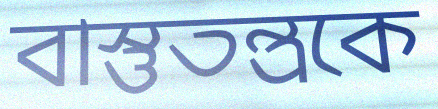
বাস্তুতন্ত্রকে